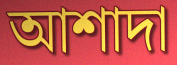
আশাদা